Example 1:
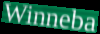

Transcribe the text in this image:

Winneba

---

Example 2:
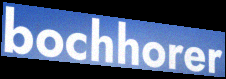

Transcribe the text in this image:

bochhorer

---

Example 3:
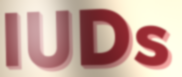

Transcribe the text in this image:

IUDs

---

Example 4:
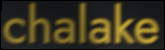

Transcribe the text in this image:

chalake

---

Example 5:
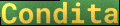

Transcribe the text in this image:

Condita